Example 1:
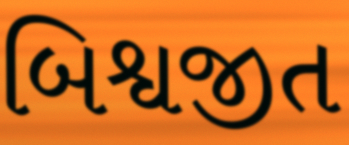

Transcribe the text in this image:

બિશ્વજીત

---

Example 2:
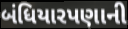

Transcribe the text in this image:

બંધિયારપણાની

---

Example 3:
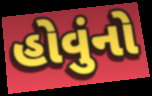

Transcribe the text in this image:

હોવુંનો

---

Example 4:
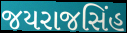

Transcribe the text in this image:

જયરાજસિંહ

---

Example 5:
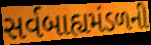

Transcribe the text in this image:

સર્વબાહ્યમંડળની